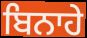
ਬਿਨਾਹੇ